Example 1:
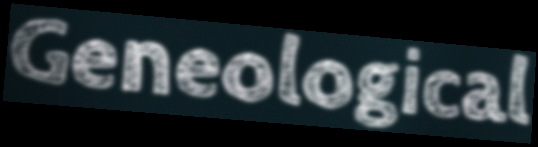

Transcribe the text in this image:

Geneological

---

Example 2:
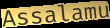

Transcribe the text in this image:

Assalamu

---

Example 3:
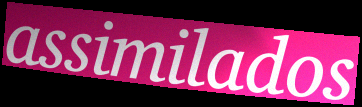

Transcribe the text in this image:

assimilados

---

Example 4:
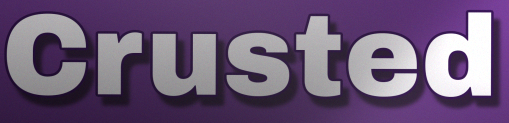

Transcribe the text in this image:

Crusted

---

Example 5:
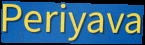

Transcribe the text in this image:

Periyava